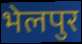
भेलपुर